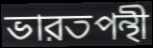
ভারতপন্থী